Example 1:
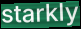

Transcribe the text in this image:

starkly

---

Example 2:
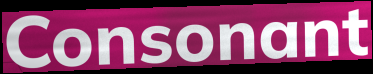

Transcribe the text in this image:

Consonant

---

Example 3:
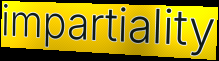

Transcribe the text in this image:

impartiality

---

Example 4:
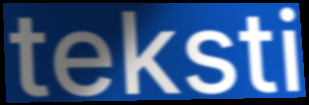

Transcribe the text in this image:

teksti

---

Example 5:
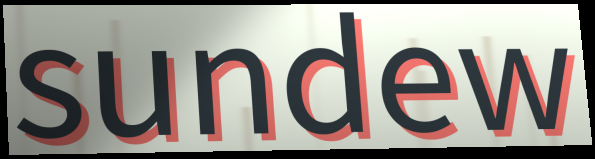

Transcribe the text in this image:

sundew